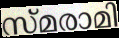
സ്മരാമി